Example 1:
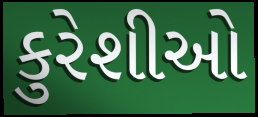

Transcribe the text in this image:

કુરેશીઓ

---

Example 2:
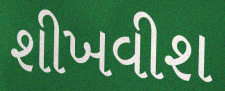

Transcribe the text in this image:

શીખવીશ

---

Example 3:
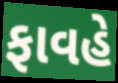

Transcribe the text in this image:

ફાવહે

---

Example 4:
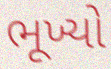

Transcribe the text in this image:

ભૂખ્યો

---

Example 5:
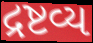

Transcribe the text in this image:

દ્રષ્ટવ્ય